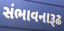
સંભાવનારૂઢ